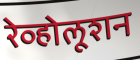
रेव्होलूशन